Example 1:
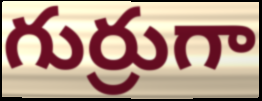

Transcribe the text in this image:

గుర్రుగా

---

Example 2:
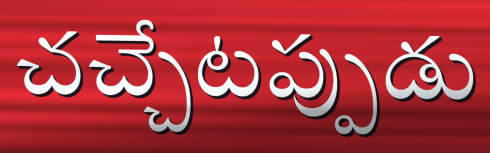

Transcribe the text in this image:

చచ్చేటప్పుడు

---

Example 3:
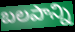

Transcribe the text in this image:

బలపాన్ని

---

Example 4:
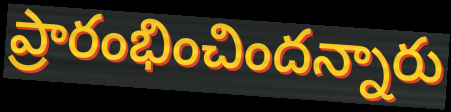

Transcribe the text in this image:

ప్రారంభించిందన్నారు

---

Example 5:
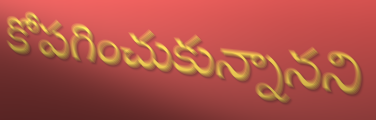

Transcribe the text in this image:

కోపగించుకున్నానని